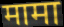
मामा